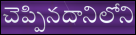
చెప్పినదానిలోని